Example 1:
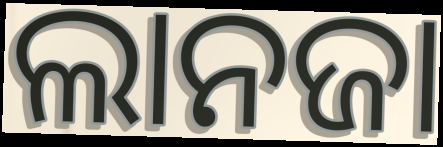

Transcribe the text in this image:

ଲାନଜା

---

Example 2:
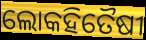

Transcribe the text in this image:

ଲୋକହିତୈଷୀ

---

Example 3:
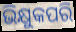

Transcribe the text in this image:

ଭିକ୍ଷୁକପରି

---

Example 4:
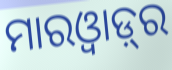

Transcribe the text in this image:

ମାରଓ୍ୱାଡ଼୍‌ର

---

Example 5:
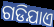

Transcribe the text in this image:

ଗଡିଯାଏ